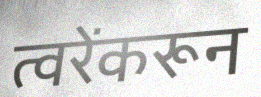
त्वरेंकरून